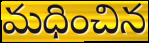
మధించిన